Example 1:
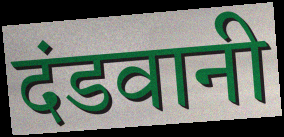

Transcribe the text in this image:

दंडवानी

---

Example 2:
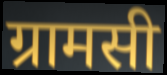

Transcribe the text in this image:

ग्रामसी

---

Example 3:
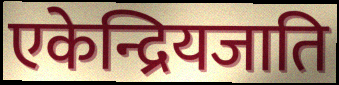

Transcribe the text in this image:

एकेन्द्रियजाति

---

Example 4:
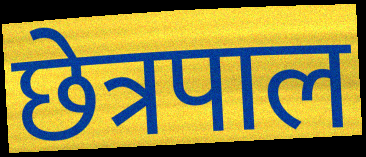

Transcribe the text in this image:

छेत्रपाल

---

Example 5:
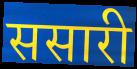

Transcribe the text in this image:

ससारी